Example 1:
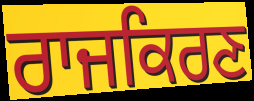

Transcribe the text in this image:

ਰਾਜਕਿਰਣ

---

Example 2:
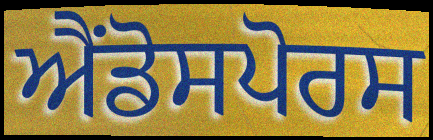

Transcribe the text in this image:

ਐਂਡੋਸਪੋਰਸ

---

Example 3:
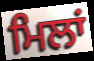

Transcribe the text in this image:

ਮਿਲਾਂ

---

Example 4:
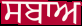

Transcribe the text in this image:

ਸਬਾਅ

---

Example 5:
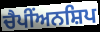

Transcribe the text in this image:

ਚੈਪੀਂਅਨਸ਼ਿਪ